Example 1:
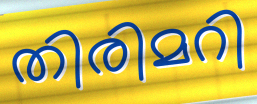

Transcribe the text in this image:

തിരിമറി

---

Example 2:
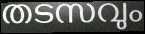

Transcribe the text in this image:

തടസവും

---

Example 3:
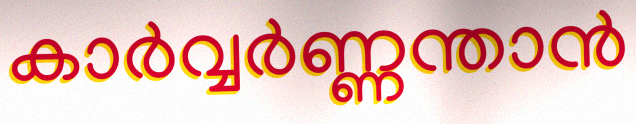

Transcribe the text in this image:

കാർവ്വർണ്ണന്താൻ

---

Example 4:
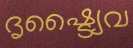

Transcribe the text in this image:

ദൃഷ്ട്യൈവ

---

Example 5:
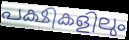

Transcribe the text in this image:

പക്ഷികളിലും